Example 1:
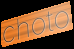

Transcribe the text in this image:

choto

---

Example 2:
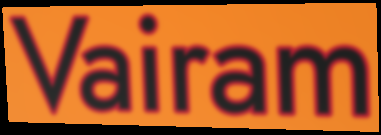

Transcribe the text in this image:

Vairam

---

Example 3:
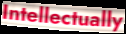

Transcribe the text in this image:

Intellectually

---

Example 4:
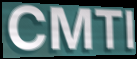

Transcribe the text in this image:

CMTI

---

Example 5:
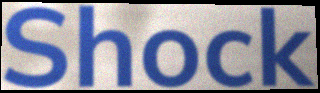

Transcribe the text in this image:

Shock